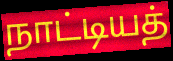
நாட்டியத்